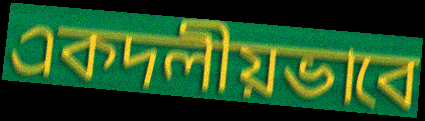
একদলীয়ভাবে